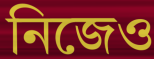
নিজেও